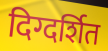
दिग्दर्शित